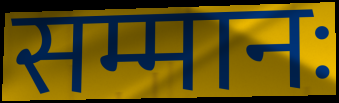
सम्मानः